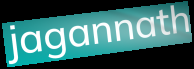
jagannath